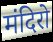
मंदिरो